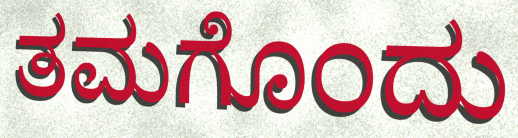
ತಮಗೊಂದು